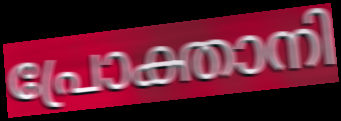
പ്രോക്താനി